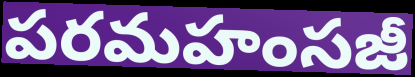
పరమహంసజీ